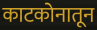
काटकोनातून